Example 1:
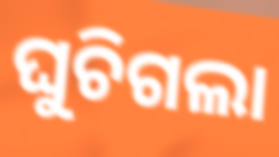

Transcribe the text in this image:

ଘୁଚିଗଲା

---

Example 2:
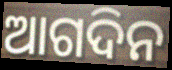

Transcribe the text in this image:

ଆଗଦିନ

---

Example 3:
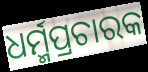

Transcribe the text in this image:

ଧର୍ମ୍ମପ୍ରଚାରକ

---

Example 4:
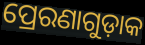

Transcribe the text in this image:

ପ୍ରେରଣାଗୁଡ଼ାକ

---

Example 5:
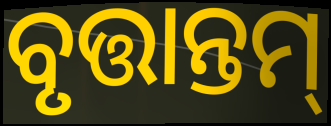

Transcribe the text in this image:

ବୃତ୍ତାନ୍ତମ୍